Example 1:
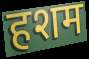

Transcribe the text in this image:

हशम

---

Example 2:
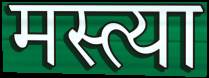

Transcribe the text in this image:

मस्त्या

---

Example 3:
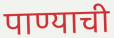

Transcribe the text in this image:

पाण्याची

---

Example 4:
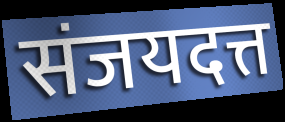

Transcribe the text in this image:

संजयदत्त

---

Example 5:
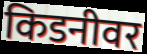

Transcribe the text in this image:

किडनीवर